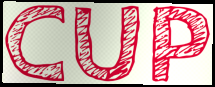
CUP